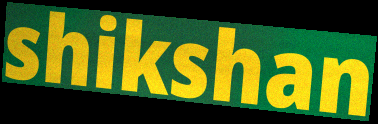
shikshan